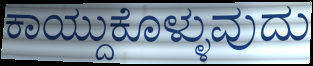
ಕಾಯ್ದುಕೊಳ್ಳುವುದು